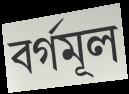
বৰ্গমূল